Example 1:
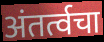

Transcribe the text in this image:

अंतर्त्वचा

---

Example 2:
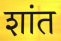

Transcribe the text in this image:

शांत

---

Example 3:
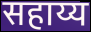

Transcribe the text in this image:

सहाय्य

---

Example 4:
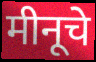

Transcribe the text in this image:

मीनूचे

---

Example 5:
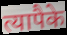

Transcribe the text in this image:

त्यापैके